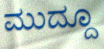
ಮುದ್ದೂ